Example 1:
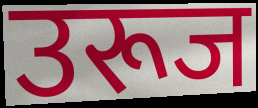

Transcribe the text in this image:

उरूज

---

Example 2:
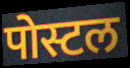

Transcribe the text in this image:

पोस्टल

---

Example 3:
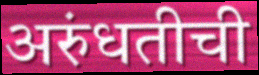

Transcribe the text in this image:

अरुंधतीची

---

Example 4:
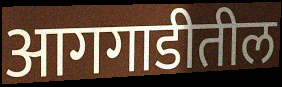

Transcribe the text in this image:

आगगाडीतील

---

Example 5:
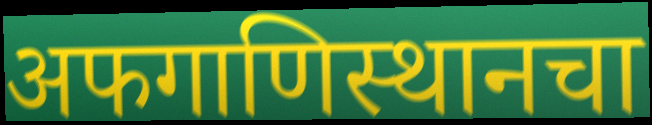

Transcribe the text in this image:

अफगाणिस्थानचा